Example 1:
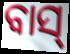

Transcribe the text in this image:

ବାସ୍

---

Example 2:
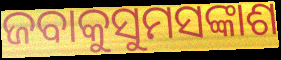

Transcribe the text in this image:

ଜବାକୁସୁମସଙ୍କାଶ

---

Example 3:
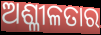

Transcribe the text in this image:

ଅଶ୍ଳୀଳତାର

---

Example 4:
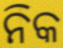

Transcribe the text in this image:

ନିକ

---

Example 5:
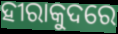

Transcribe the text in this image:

ହୀରାକୁଦରେ